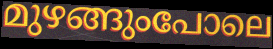
മുഴങ്ങുംപോലെ